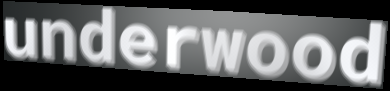
underwood